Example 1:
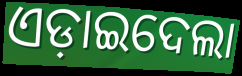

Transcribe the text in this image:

ଏଡ଼ାଇଦେଲା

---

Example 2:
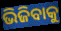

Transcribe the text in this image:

ଭିଜିବାକୁ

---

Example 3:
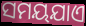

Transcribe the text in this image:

ସମୟଯାଏ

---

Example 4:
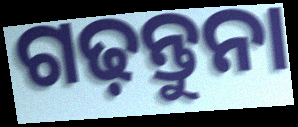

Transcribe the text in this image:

ଗଢ଼ନ୍ତୁନା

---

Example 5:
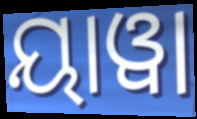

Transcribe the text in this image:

ୟାୱା